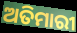
ଅତିମାରୀ